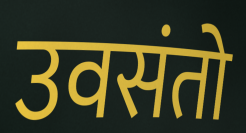
उवसंतो